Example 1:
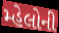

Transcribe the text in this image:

મ્હેલોની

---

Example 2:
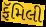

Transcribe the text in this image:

ફૅમિલી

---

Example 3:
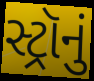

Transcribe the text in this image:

સ્ટ્રૉનું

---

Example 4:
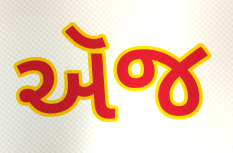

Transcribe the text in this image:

ઍજ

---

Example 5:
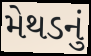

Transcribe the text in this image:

મેથડનું